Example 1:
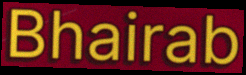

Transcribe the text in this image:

Bhairab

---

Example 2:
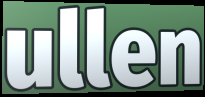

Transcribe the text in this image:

ullen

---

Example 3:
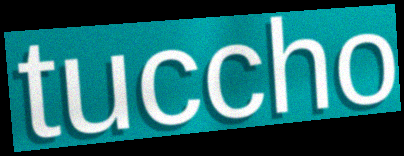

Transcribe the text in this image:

tuccho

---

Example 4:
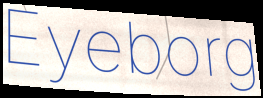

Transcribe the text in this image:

Eyeborg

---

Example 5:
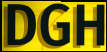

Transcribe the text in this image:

DGH